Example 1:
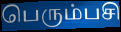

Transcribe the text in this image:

பெரும்பசி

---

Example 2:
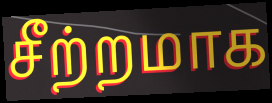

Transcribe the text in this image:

சீற்றமாக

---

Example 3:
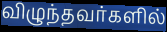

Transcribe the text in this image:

விழுந்தவர்களில்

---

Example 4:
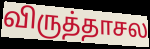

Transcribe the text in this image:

விருத்தாசல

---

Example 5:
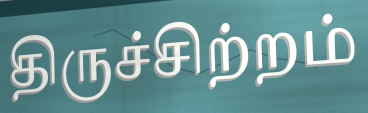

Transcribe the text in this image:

திருச்சிற்றம்